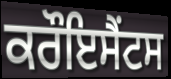
ਕਰੌਇਸੈਂਟਸ